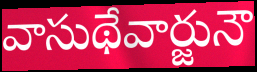
వాసుథేవార్జునౌ